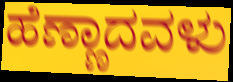
ಹೆಣ್ಣಾದವಳು